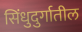
सिंधुदुर्गातील